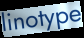
linotype